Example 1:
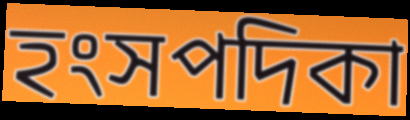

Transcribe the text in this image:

হংসপদিকা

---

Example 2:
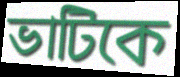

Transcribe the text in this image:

ভাটিকে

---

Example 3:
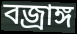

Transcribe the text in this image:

বজ্রাঙ্গ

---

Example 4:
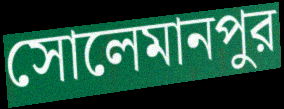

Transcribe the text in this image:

সোলেমানপুর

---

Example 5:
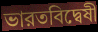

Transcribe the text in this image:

ভারতবিদ্বেষী